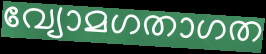
വ്യോമഗതാഗത